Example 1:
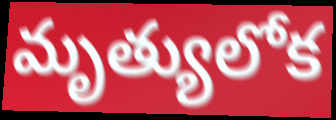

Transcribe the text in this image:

మృత్యులోక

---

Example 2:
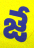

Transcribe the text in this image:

జే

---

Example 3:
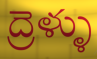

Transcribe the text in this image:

ద్రెళ్ళు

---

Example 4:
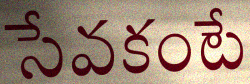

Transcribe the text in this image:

సేవకంటే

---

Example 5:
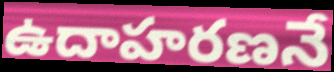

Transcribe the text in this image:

ఉదాహరణనే